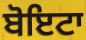
ਬੋਇਟਾ